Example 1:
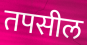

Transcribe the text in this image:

तपसील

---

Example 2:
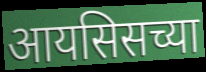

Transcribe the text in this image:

आयसिसच्या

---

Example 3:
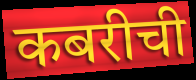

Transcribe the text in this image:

कबरीची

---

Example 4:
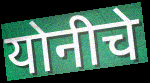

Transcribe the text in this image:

योनीचे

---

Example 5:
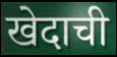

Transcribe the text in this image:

खेदाची